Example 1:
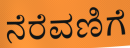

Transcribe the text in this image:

ನೆರೆವಣಿಗೆ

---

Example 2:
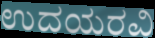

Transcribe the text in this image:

ಉದಯರವಿ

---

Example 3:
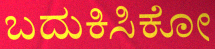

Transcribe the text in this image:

ಬದುಕಿಸಿಕೋ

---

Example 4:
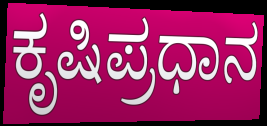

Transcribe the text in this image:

ಕೃಷಿಪ್ರಧಾನ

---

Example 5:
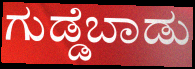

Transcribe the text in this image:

ಗುಡ್ಡೆಬಾಡು